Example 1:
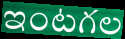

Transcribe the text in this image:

ఇంటగల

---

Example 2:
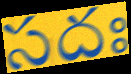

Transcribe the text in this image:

సదః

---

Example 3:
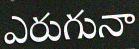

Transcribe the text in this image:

ఎరుగునా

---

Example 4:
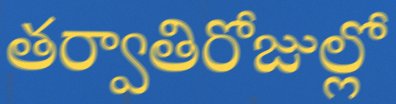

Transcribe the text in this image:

తర్వాతిరోజుల్లో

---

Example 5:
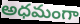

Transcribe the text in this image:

అధమంగా